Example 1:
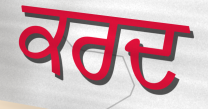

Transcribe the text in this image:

ਕਰਦ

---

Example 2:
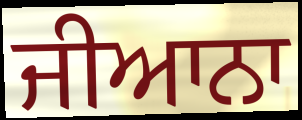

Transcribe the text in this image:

ਜੀਆਨਾ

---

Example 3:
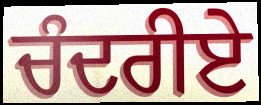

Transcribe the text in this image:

ਚੰਦਰੀਏ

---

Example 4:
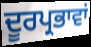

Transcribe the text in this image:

ਦੂਰਪ੍ਰਭਾਵਾਂ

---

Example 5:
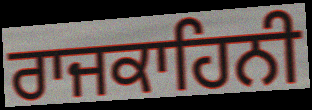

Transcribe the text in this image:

ਰਾਜਕਾਹਿਨੀ